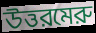
উত্তরমেরু